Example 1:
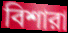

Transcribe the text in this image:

বিশারা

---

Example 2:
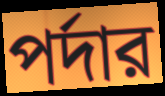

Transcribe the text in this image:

পর্দার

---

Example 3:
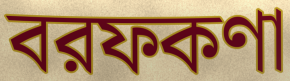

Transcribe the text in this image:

বরফকণা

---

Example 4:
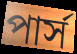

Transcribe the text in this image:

পার্স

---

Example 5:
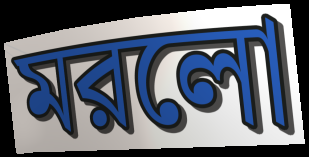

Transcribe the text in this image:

মরলো